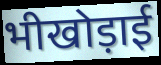
भीखोड़ाई